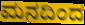
ಮನದಿಂದ